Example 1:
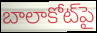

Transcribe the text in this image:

బాలాకోట్‌పై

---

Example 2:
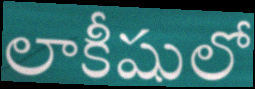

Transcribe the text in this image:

లాకీషులో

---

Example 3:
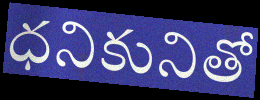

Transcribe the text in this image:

ధనికునితో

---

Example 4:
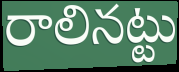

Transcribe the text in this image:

రాలినట్టు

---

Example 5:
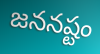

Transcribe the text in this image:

జననష్టం